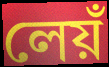
লেয়ঁ